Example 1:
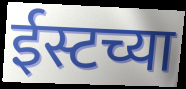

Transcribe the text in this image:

ईस्टच्या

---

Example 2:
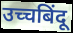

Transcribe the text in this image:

उच्चबिंदू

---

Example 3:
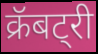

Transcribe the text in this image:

क्रॅबट्री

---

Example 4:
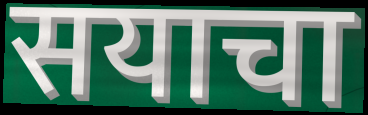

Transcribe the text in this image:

सयाचा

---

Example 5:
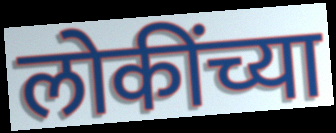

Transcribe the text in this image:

लोकींच्या